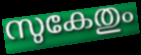
സുകേതും